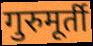
गुरुमूर्ती